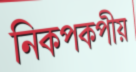
নিকপকপীয়